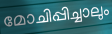
മോചിപ്പിച്ചാലും